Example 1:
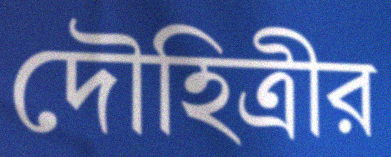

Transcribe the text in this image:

দৌহিত্রীর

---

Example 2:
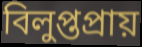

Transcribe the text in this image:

বিলুপ্তপ্রায়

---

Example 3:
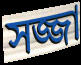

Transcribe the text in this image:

সজ্জা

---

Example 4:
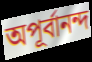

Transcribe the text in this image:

অপূর্বানন্দ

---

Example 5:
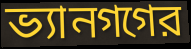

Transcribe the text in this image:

ভ্যানগগের